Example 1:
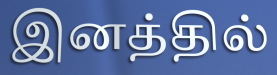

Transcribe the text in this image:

இனத்தில்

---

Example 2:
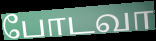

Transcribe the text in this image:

போடவா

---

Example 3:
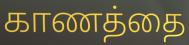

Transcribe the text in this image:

காணத்தை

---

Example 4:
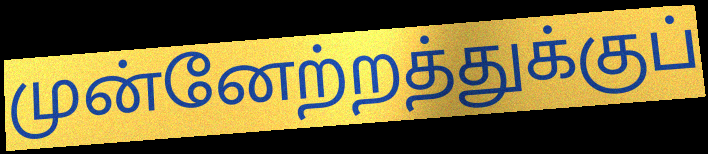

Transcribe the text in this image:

முன்னேற்றத்துக்குப்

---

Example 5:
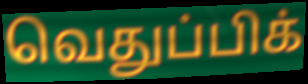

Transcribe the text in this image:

வெதுப்பிக்